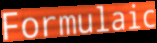
Formulaic